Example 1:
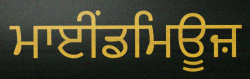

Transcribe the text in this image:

ਮਾਈਂਡਮਿਊਜ਼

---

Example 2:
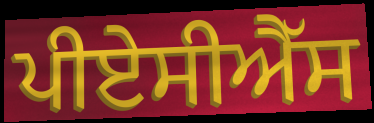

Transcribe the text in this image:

ਪੀਏਸੀਐੱਸ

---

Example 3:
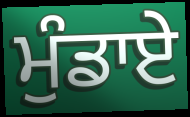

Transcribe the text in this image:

ਮੁੰਡਾਏ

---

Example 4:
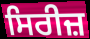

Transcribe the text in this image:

ਸਿਰੀਜ਼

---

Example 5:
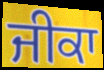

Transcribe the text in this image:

ਜੀਕਾ